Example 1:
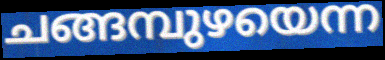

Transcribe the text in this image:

ചങ്ങമ്പുഴയെന്ന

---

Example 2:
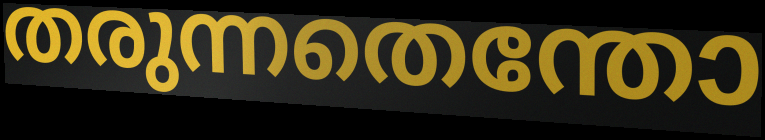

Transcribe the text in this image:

തരുന്നതെന്തോ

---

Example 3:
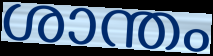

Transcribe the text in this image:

ശാന്തം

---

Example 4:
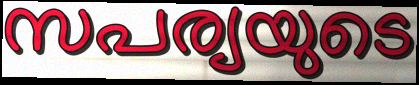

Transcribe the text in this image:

സപര്യയുടെ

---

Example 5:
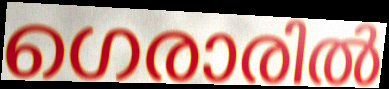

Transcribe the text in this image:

ഗെരാരിൽ